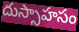
దుస్సాహసం